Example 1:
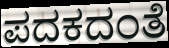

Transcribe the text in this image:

ಪದಕದಂತೆ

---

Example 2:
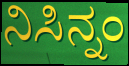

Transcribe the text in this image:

ನಿಸಿನ್ನಂ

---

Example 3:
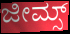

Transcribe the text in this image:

ಜೀಮ್ಸ್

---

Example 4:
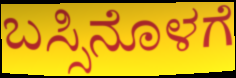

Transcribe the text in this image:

ಬಸ್ಸಿನೊಳಗೆ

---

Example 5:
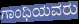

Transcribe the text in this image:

ಗಾಂಧಿಯವರು